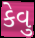
કેવુ